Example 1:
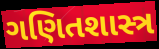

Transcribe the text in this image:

ગણિતશાસ્ત્ર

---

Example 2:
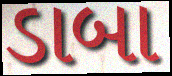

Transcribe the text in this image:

ડાબા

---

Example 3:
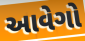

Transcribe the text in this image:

આવેગો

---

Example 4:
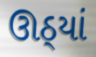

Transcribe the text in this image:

ઊઠ્યાં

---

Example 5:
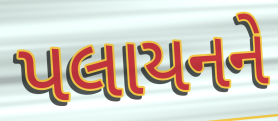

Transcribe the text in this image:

પલાયનને